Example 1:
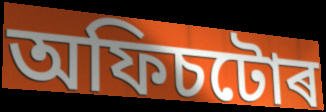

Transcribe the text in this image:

অফিচটোৰ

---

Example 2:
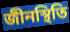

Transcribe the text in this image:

জীনস্থিতি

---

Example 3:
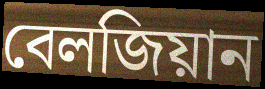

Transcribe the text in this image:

বেলজিয়ান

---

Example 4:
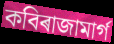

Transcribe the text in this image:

কবিৰাজামাৰ্গ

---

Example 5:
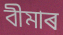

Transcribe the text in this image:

বীমাৰ